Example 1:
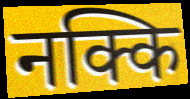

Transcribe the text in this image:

नक्कि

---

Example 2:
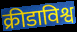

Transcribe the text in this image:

क्रीडाविश्व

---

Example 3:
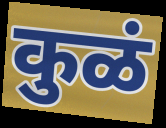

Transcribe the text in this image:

कुळं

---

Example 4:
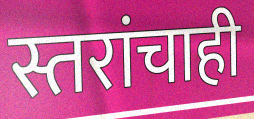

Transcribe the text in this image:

स्तरांचाही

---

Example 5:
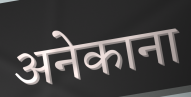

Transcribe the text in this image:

अनेकाना